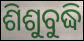
ଶିଶୁବୁଦ୍ଧି